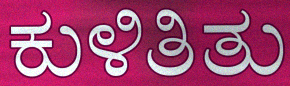
ಕುಳಿತಿತು